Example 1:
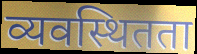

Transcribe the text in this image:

व्यवस्थितता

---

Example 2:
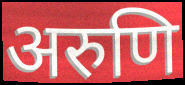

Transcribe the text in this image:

अरुणि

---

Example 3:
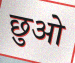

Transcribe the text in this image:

छुओ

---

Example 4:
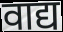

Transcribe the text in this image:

वाद्य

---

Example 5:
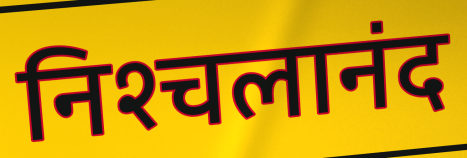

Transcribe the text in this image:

निश्चलानंद